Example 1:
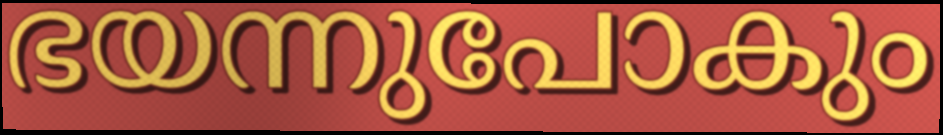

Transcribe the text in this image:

ഭയന്നുപോകും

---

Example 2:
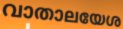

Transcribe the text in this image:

വാതാലയേശ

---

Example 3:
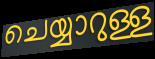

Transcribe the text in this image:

ചെയ്യാറുള്ള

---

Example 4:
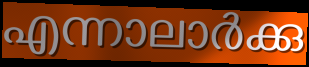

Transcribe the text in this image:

എന്നാലാർക്കു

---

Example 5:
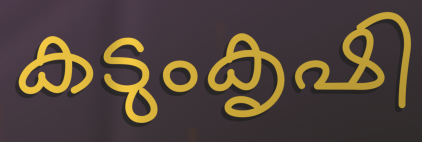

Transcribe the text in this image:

കടുംകൃഷി